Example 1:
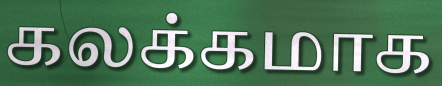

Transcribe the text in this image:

கலக்கமாக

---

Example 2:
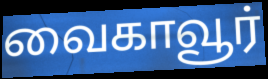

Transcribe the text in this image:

வைகாவூர்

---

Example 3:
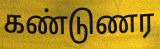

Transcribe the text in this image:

கண்டுணர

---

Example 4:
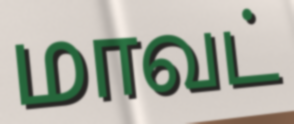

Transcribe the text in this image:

மாவட்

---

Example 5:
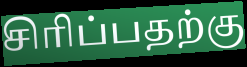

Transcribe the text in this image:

சிரிப்பதற்கு